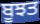
ਬੂਝਤ